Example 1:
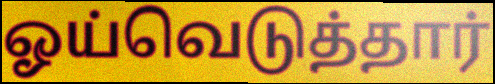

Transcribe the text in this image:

ஓய்வெடுத்தார்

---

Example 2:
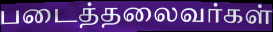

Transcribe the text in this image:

படைத்தலைவர்கள்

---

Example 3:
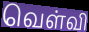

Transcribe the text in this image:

வெள்வி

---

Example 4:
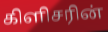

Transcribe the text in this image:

கிளிசரின்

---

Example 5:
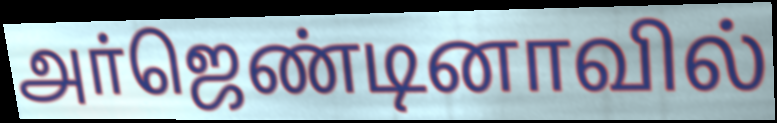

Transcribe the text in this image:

அர்ஜெண்டினாவில்